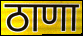
ठाणा